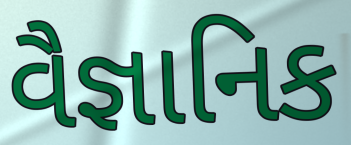
વૈજ્ઞાનિક